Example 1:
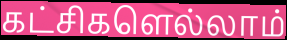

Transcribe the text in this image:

கட்சிகளெல்லாம்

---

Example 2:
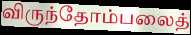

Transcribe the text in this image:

விருந்தோம்பலைத்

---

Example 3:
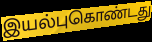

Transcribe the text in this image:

இயல்புகொண்டது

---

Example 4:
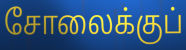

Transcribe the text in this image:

சோலைக்குப்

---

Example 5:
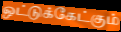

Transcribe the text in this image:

ஒட்டுக்கேட்கும்